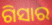
ଗିସାର